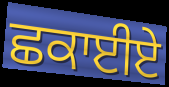
ਛਕਾਈਏ